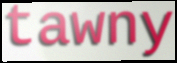
tawny